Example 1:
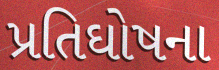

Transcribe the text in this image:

પ્રતિઘોષના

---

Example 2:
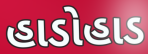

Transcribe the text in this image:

હાડોહાડ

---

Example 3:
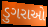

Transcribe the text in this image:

ડુગરાઓ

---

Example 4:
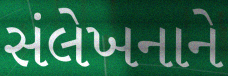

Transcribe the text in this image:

સંલેખનાને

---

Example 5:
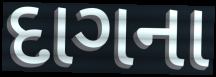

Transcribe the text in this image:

દાગના